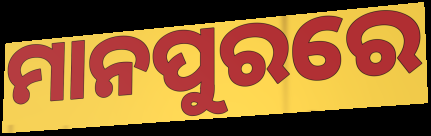
ମାନପୁରରେ